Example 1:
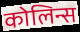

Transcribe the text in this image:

कोलिन्स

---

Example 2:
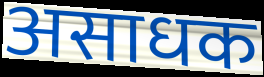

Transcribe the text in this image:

असाधक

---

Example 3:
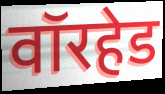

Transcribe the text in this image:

वॉरहेड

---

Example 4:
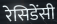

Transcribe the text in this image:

रेसिडेंसी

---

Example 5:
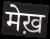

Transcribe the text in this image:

मेख़